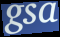
gsa